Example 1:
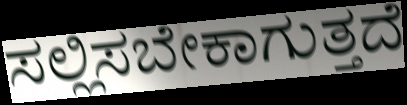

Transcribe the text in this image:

ಸಲ್ಲಿಸಬೇಕಾಗುತ್ತದೆ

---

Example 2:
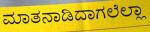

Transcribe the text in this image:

ಮಾತನಾಡಿದಾಗಲೆಲ್ಲಾ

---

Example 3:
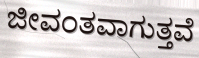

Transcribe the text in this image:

ಜೀವಂತವಾಗುತ್ತವೆ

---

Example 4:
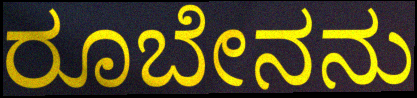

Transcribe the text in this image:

ರೂಬೇನನು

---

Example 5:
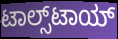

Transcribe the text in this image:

ಟಾಲ್ಸ್‌ಟಾಯ್